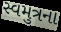
સ્વમુત્રના